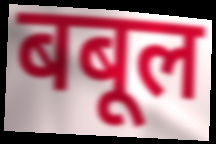
बबूल